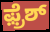
ಫ಼್ರೆಶ್